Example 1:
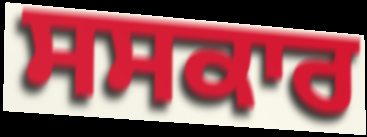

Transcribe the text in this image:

ਸਸਕਾਰ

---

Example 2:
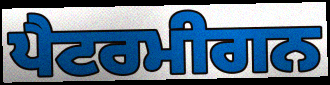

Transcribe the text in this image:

ਪੈਟਰਮੀਗਨ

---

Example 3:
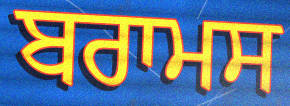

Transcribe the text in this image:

ਬਰਾਮਸ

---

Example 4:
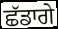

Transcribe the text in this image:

ਛੱਡਾਗੇ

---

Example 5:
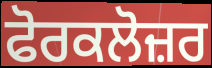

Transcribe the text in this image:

ਫੋਰਕਲੋਜ਼ਰ